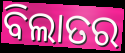
ବିଲାତର